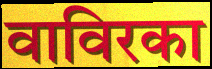
वाविरका